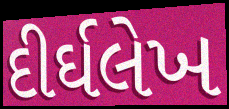
દીર્ઘલેખ